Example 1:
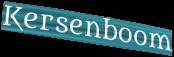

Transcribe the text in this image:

Kersenboom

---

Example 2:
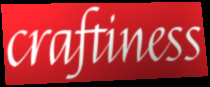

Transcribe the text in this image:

craftiness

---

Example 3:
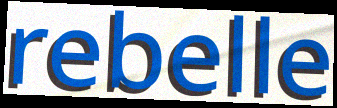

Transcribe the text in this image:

rebelle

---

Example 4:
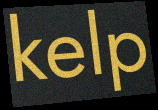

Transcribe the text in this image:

kelp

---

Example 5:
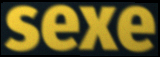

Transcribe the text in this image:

sexe